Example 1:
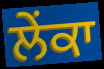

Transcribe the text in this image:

ਲੇਂਕਾ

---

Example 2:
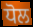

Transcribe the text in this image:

ਧੋਲ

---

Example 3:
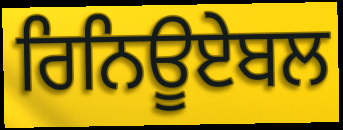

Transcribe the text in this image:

ਰਿਨਿਊਏਬਲ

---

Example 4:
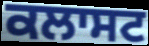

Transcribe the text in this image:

ਕਲਾਸਟ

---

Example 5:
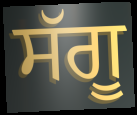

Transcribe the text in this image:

ਸੱਗੂ